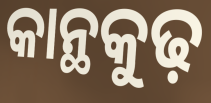
କାନ୍ଥକୁଢ଼